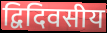
द्विदिवसीय